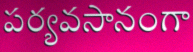
పర్యవసానంగా